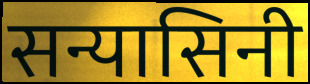
सन्यासिनी